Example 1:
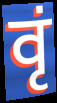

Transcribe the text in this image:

वृं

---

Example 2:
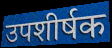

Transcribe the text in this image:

उपशीर्षक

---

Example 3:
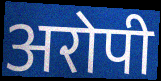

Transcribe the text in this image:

अरोपी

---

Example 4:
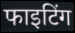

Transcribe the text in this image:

फाइटिंग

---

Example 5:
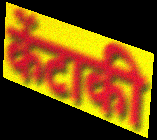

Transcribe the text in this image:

केंटाकी